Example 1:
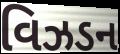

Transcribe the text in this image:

વિઝડન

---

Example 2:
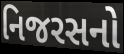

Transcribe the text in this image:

નિજરસનો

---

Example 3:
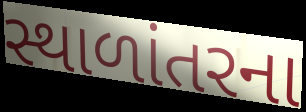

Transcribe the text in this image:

સ્થાળાંતરના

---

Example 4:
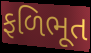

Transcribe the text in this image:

ફળિભૂત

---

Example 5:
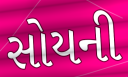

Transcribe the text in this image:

સોયની